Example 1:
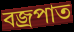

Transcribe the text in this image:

বজ্রপাত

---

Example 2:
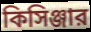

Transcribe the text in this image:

কিসিঞ্জার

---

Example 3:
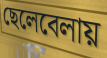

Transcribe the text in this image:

ছেলেবেলায়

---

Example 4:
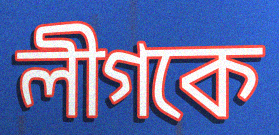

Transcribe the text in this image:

লীগকে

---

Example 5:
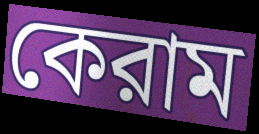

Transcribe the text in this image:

কেরাম